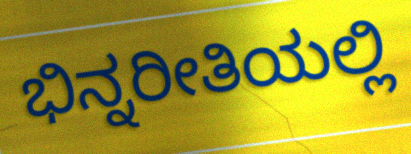
ಭಿನ್ನರೀತಿಯಲ್ಲಿ